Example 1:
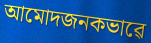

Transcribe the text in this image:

আমোদজনকভাৱে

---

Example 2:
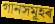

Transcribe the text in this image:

গানসমূহৰ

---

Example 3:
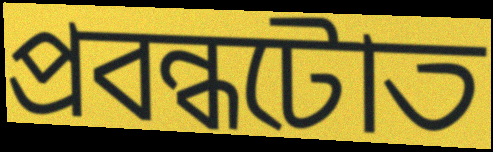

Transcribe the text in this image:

প্ৰবন্ধটোত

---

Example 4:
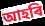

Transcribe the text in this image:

আহৰি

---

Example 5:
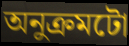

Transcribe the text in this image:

অনুক্ৰমটো